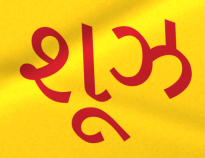
શૂઝ